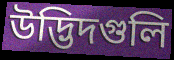
উদ্ভিদগুলি